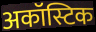
अकॉस्टिक